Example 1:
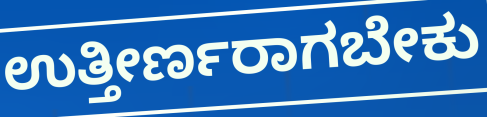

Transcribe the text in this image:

ಉತ್ತೀರ್ಣರಾಗಬೇಕು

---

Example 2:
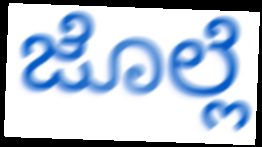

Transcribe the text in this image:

ಜೊಲ್ಲೆ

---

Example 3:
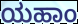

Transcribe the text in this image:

ಯಹಾಂ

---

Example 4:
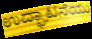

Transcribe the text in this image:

ಉದ್ಘಾಟನೆಯು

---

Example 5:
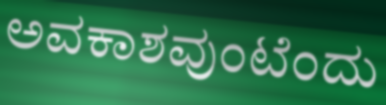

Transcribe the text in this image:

ಅವಕಾಶವುಂಟೆಂದು